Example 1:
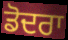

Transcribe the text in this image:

ਡੋਦਰਾ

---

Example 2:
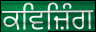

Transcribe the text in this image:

ਕਵਿਜ਼ਿੰਗ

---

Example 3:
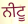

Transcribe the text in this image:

ਨੀਟੂ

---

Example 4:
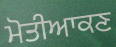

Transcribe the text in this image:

ਮੋਤੀਆਕਣ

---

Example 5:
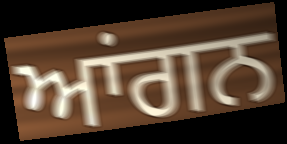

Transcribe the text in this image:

ਆਂਗਨ